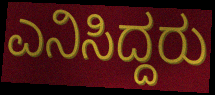
ಎನಿಸಿದ್ದರು